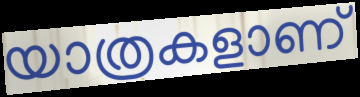
യാത്രകളാണ്